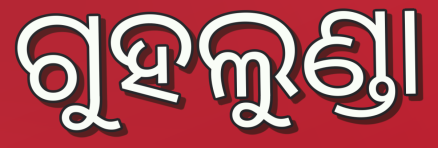
ଗୁହଲୁଣ୍ଡା